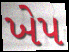
ખેપ